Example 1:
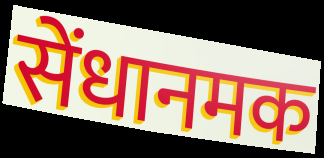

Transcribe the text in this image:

सेंधानमक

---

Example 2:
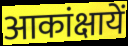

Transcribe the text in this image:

आकांक्षायें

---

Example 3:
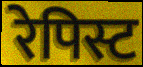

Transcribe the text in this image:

रेपिस्ट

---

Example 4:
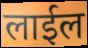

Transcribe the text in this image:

लाईल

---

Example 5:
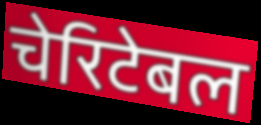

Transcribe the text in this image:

चेरिटेबल